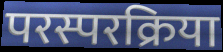
परस्परक्रिया